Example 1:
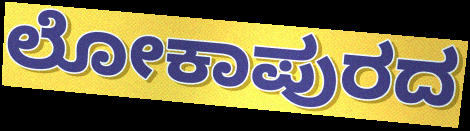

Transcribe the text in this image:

ಲೋಕಾಪುರದ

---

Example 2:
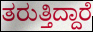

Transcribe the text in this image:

ತರುತ್ತಿದ್ದಾರೆ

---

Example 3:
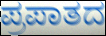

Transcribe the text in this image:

ಪ್ರಪಾತದ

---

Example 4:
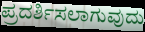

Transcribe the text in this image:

ಪ್ರದರ್ಶಿಸಲಾಗುವುದು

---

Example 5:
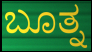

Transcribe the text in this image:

ಬೂತ್ನ